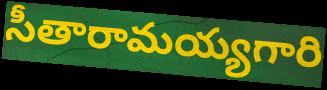
సీతారామయ్యగారి